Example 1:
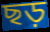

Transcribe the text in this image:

ছড়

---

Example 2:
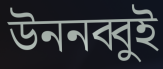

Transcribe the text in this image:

উননব্বুই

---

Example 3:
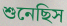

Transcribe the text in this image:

শুনেছিস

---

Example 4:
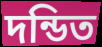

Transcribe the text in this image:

দন্ডিত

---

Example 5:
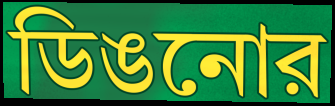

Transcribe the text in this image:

ডিঙনোর